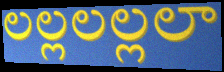
లల్లలల్లలా